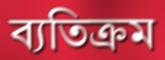
ব্যতিক্রম